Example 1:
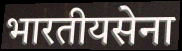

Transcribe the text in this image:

भारतीयसेना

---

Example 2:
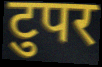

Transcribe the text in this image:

टुपर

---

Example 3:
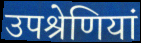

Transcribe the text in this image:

उपश्रेणियां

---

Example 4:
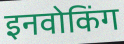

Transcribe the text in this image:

इनवोकिंग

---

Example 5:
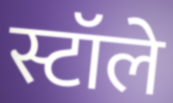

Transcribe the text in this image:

स्टॉले